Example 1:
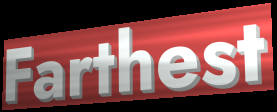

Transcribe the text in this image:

Farthest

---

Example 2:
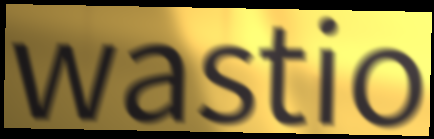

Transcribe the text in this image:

wastio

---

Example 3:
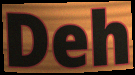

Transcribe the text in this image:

Deh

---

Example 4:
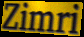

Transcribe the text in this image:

Zimri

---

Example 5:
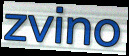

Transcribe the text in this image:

zvino